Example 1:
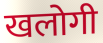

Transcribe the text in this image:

खलोगी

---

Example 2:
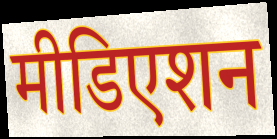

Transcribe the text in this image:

मीडिएशन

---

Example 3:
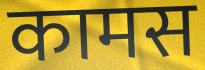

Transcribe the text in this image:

कामस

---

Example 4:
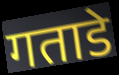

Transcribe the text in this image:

गताडे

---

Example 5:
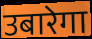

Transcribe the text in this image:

उबारेगा